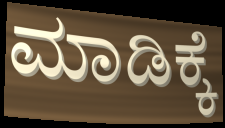
ಮಾಡಿಕ್ಕೆ